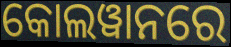
କୋଲୱାନରେ